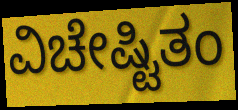
ವಿಚೇಷ್ಟಿತಂ